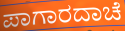
ಪಾಗಾರದಾಚೆ